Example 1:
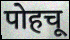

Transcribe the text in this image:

पोहचू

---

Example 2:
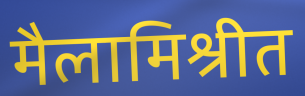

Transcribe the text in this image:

मैलामिश्रीत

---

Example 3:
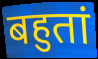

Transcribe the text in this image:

बहुतां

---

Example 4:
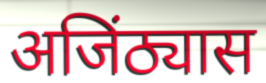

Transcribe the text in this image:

अजिंठ्यास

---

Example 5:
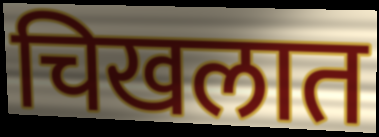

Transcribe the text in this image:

चिखलात